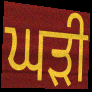
ਘਡ਼ੀ